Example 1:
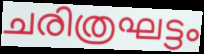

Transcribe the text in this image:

ചരിത്രഘട്ടം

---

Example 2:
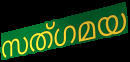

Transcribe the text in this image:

സത്ഗമയ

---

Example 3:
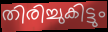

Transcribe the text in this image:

തിരിച്ചുകിട്ടും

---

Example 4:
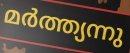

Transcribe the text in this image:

മർത്ത്യന്നു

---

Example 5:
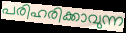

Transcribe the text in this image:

പരിഹരിക്കാവുന്ന